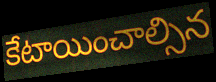
కేటాయించాల్సిన